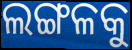
ଲଙ୍ଗଳକୁ